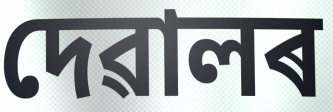
দেৱালৰ